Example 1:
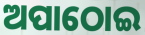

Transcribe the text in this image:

ଅପାଠୋଇ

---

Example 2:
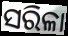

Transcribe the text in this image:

ସରିଳା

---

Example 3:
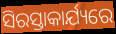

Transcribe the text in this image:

ସିରସ୍ତାକାର୍ଯ୍ୟରେ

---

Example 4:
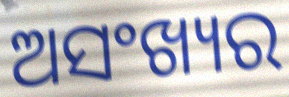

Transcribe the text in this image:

ଅସଂଖ୍ୟର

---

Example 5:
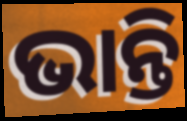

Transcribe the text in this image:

ଭାନ୍ତି